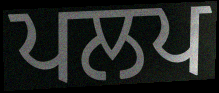
ਪਲਪ